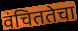
वंचिततेचा